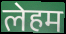
लेहम